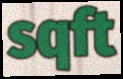
sqft